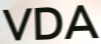
VDA